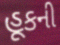
હૂકની